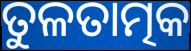
ତୁଳତାତ୍ମକ